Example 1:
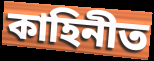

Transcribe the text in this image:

কাহিনীত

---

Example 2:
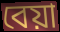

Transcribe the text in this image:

বেয়া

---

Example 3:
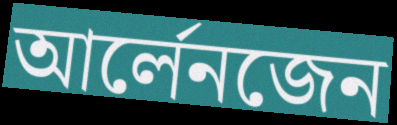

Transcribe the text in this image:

আৰ্লেনজেন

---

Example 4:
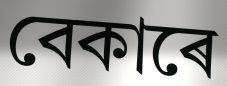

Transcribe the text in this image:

বেকাৰে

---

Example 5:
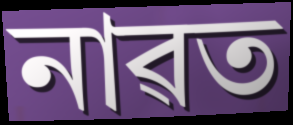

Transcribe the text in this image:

নাৱত